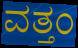
ವತ್ತಂ